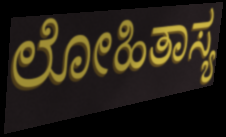
ಲೋಹಿತಾಸ್ಯ